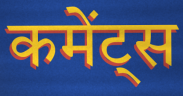
कमेंट्स